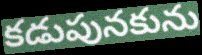
కడుపునకును